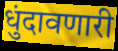
धुंदावणारी